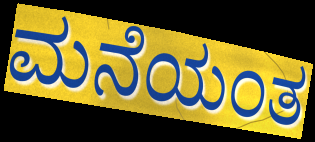
ಮನೆಯಂತ